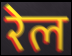
रेल